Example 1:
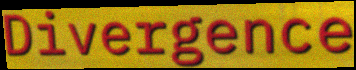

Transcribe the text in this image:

Divergence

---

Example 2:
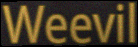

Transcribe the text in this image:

Weevil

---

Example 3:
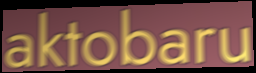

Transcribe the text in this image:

aktobaru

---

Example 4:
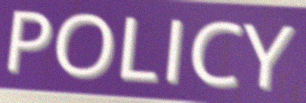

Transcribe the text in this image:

POLICY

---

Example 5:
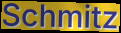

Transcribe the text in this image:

Schmitz